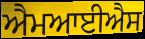
ਐਮਆਈਐਸ